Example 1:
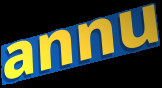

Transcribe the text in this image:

annu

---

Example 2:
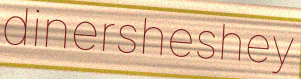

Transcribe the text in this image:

dinersheshey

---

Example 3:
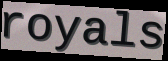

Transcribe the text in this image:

royals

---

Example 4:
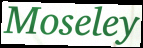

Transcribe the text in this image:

Moseley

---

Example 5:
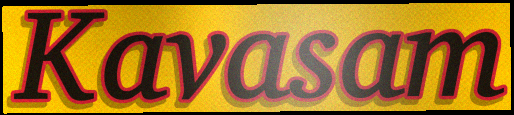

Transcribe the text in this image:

Kavasam